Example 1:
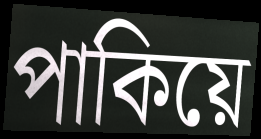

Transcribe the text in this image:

পাকিয়ে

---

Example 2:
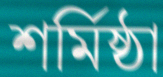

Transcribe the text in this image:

শর্মিষ্ঠা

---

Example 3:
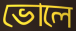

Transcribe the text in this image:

ভোলে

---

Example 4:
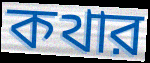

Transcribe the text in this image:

কথার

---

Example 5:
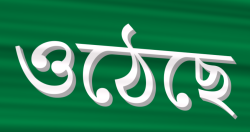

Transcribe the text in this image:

ওঠেছে